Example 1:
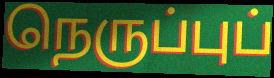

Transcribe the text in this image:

நெருப்புப்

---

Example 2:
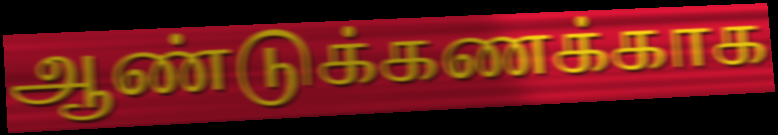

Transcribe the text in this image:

ஆண்டுக்கணக்காக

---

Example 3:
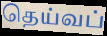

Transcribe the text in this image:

தெய்வப்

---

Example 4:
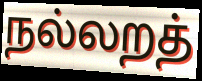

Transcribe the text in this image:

நல்லறத்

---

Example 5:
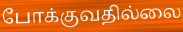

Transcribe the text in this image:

போக்குவதில்லை